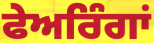
ਫੇਅਰਿੰਗਾਂ